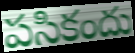
పసికందు